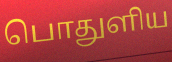
பொதுளிய